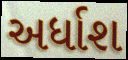
અર્ધાશ